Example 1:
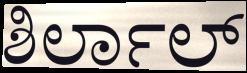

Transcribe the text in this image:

ಶಿರ್ಲಾಲ್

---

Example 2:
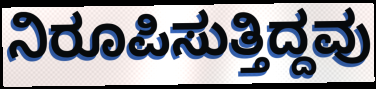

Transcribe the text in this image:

ನಿರೂಪಿಸುತ್ತಿದ್ದವು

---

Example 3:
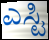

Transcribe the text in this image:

ಎಸ್ಟಿ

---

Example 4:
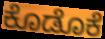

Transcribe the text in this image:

ಕೊಡೊಕೆ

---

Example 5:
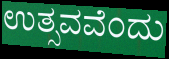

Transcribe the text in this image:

ಉತ್ಸವವೆಂದು